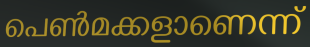
പെൺമക്കളാണെന്ന്